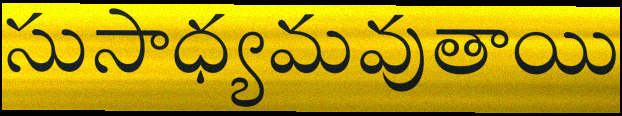
సుసాధ్యమవుతాయి